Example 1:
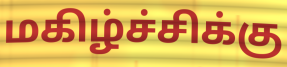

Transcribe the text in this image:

மகிழ்ச்சிக்கு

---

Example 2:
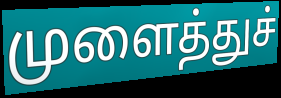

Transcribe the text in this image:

முளைத்துச்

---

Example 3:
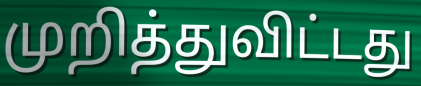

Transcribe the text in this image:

முறித்துவிட்டது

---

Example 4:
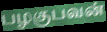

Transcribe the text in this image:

பழகுபவன்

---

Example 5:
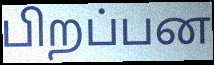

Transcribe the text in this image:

பிறப்பன